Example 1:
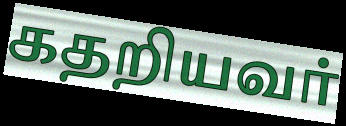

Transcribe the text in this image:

கதறியவர்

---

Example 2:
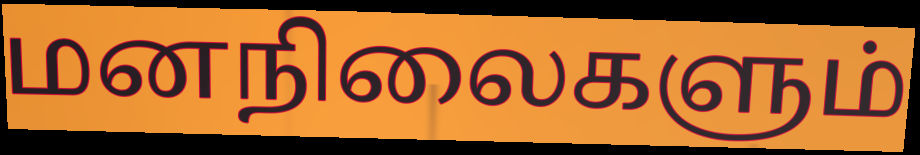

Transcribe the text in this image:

மனநிலைகளும்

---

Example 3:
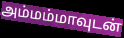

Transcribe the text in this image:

அம்மம்மாவுடன்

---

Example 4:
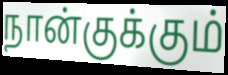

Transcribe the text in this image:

நான்குக்கும்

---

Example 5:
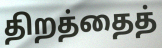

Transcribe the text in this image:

திறத்தைத்